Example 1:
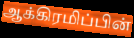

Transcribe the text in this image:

ஆக்கிரமிப்பின்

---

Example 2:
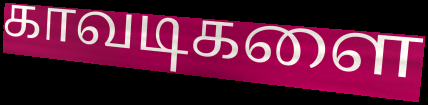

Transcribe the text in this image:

காவடிகளை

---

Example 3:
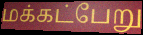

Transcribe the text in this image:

மக்கட்பேறு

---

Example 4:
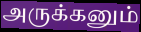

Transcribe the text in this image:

அருக்கனும்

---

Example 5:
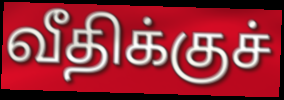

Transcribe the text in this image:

வீதிக்குச்